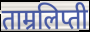
ताम्रलिप्ती